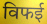
विफई